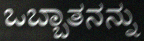
ಒಬ್ಬಾತನನ್ನು